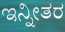
ಇನ್ನೀತರ